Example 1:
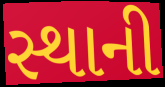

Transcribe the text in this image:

સ્થાની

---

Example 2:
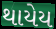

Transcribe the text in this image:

થાયેય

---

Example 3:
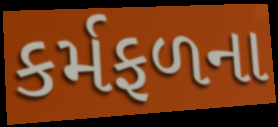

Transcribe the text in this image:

કર્મફળના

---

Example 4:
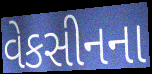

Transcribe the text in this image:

વેકસીનના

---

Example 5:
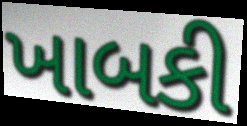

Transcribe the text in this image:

ખાબકી